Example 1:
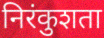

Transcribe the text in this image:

निरंकुशता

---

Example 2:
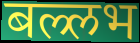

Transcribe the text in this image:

बल्लभ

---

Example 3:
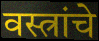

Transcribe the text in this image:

वस्त्रांचे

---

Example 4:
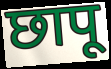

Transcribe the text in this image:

छापू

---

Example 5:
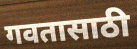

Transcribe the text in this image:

गवतासाठी